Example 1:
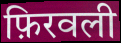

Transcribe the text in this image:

फ़िरवली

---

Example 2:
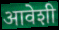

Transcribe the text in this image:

आवेशी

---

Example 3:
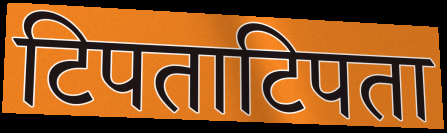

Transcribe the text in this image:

टिपताटिपता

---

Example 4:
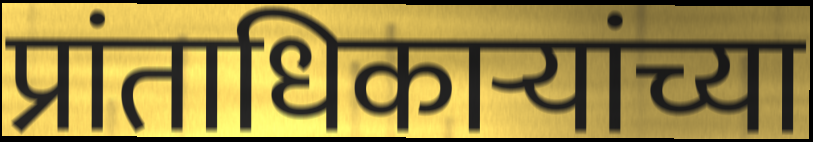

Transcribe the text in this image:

प्रांताधिकाऱ्यांच्या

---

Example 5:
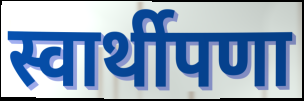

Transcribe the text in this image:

स्वार्थीपणा